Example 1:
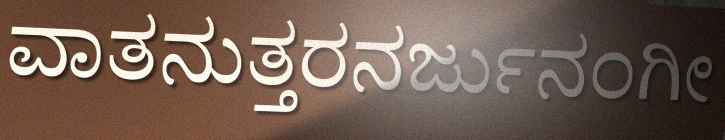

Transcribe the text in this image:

ವಾತನುತ್ತರನರ್ಜುನಂಗೀ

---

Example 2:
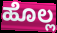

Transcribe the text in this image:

ಹೊಲ್ಲ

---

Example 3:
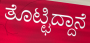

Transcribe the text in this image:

ತೊಟ್ಟಿದ್ದಾನೆ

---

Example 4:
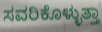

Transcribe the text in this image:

ಸವರಿಕೊಳ್ಳುತ್ತಾ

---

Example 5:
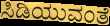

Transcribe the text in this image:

ಸಿಡಿಯುವಂತೆ